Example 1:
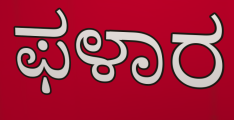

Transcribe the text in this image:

ಫಳಾರ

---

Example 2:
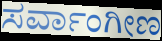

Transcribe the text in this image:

ಸರ್ವಾಂಗೀಣ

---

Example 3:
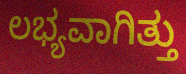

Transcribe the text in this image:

ಲಭ್ಯವಾಗಿತ್ತು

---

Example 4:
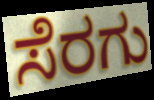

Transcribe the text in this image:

ಸೆರಗು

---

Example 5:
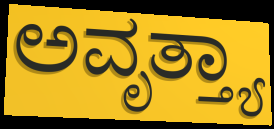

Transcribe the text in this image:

ಅವೃತ್ತ್ಯಾ